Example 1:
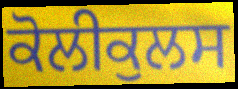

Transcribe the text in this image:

ਕੋਲੀਕੁਲਸ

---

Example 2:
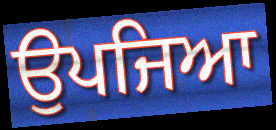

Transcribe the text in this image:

ਉਪਜਿਆ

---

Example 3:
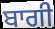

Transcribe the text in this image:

ਬਾਗੀ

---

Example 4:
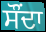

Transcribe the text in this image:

ਸੌਂਦਾ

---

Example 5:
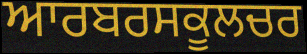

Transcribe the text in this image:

ਆਰਬਰਸਕੂਲਚਰ